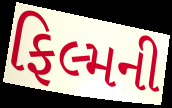
ફિલ્મની